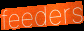
feeders